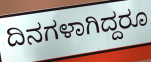
ದಿನಗಳಾಗಿದ್ದರೂ